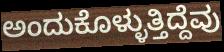
ಅಂದುಕೊಳ್ಳುತ್ತಿದ್ದೆವು